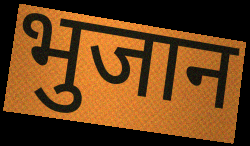
भुजान